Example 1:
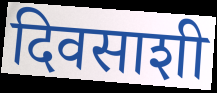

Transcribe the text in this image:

दिवसाशी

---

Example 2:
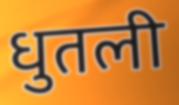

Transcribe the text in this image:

धुतली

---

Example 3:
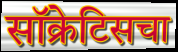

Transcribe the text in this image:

सॉक्रेटिसचा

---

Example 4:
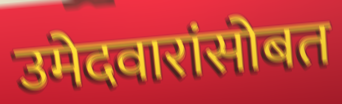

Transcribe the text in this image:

उमेदवारांसोबत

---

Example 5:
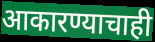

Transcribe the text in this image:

आकारण्याचाही